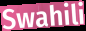
Swahili